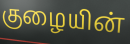
குழையின்